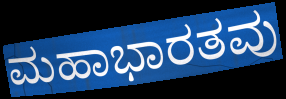
ಮಹಾಭಾರತವು